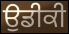
ਉਡੀਕੀ